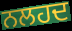
ਨਲਹਦ